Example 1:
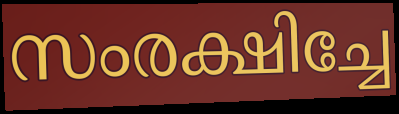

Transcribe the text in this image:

സംരക്ഷിച്ചേ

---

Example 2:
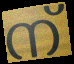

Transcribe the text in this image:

ന്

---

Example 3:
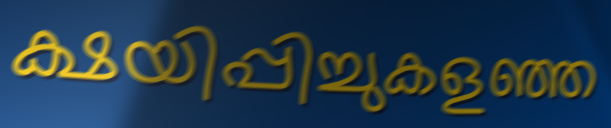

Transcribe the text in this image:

ക്ഷയിപ്പിച്ചുകളഞ്ഞ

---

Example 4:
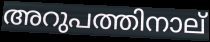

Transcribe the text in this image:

അറുപത്തിനാല്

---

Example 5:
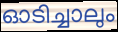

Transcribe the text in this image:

ഓടിച്ചാലും